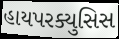
હાયપરક્યુસિસ